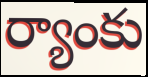
ర్యాంకు